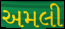
અમલી